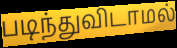
படிந்துவிடாமல்